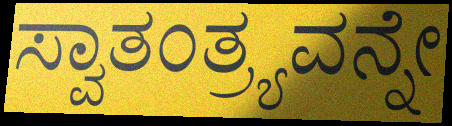
ಸ್ವಾತಂತ್ರ್ಯವನ್ನೇ